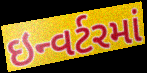
ઇન્વર્ટરમાં